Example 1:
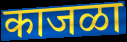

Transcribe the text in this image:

काजळा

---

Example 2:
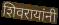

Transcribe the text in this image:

शिवरायांनी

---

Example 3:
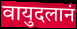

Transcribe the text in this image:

वायुदलानं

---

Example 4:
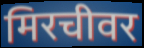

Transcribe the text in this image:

मिरचीवर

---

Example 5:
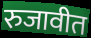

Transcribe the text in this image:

रुजावीत